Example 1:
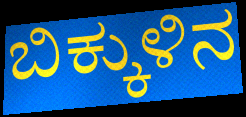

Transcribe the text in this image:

ಬಿಕ್ಕುಳಿನ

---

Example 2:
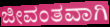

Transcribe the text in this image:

ಜೀವಂತವಾಗಿ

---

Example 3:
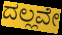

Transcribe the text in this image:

ದಲ್ಲವೇ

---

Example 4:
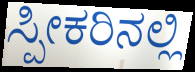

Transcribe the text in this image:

ಸ್ಪೀಕರಿನಲ್ಲಿ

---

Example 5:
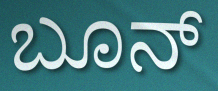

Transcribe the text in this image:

ಬೂನ್